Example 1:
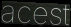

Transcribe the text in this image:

acest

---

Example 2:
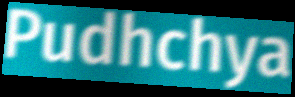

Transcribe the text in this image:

Pudhchya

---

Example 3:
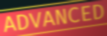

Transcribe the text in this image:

ADVANCED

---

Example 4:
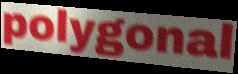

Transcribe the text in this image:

polygonal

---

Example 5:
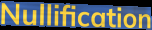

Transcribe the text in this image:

Nullification